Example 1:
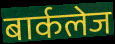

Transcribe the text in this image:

बार्कलेज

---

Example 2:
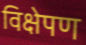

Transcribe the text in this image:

विक्षेपण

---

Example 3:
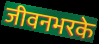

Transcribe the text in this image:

जीवनभरके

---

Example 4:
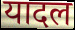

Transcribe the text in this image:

यादल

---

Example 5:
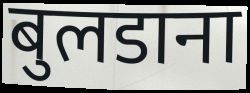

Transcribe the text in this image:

बुलडाना